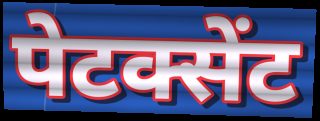
पेटक्सेंट